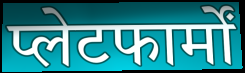
प्लेटफार्मों